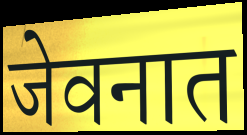
जेवनात